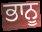
ਭਾਨੂ